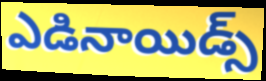
ఎడినాయిడ్స్